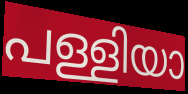
പള്ളിയാ